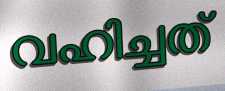
വഹിച്ചത്